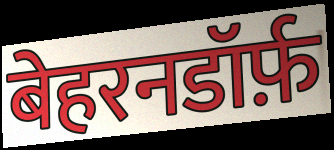
बेहरनडॉर्फ़